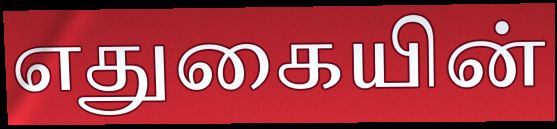
எதுகையின்